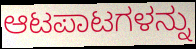
ಆಟಪಾಟಗಳನ್ನು